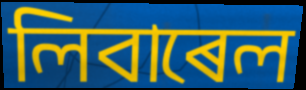
লিবাৰেল